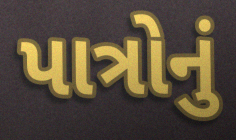
પાત્રોનું